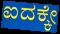
ಐದಕ್ಕೇ